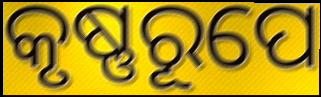
କୃଷ୍ଣରୂପେ